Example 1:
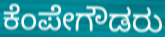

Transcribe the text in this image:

ಕೆಂಪೇಗೌಡರು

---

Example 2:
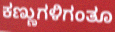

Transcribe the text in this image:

ಕಣ್ಣುಗಳಿಗಂತೂ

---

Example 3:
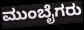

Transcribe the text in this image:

ಮುಂಬೈಗರು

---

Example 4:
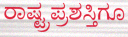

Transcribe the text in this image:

ರಾಷ್ಟ್ರಪ್ರಶಸ್ತಿಗೂ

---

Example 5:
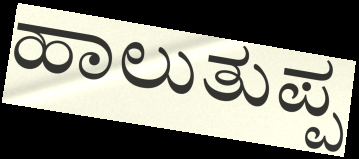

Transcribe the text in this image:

ಹಾಲುತುಪ್ಪ